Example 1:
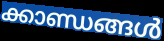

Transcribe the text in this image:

ക്കാണ്ഡങ്ങൾ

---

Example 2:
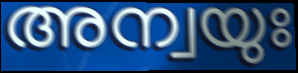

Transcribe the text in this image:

അന്വയുഃ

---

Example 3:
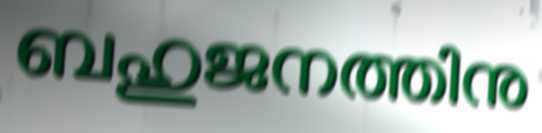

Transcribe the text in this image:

ബഹുജനത്തിനു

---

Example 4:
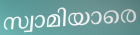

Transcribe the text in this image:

സ്വാമിയാരെ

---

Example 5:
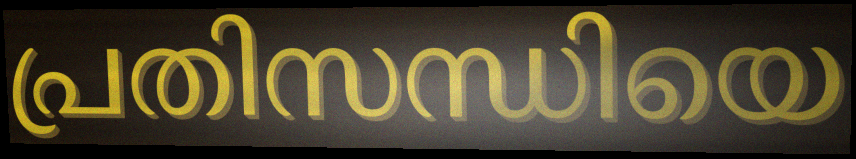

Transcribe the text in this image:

പ്രതിസന്ധിയെ